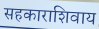
सहकाराशिवाय